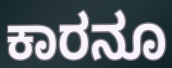
ಕಾರನೂ